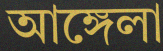
আঙ্গেলা